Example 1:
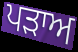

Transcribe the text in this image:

ਪਡ਼ਾਅ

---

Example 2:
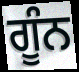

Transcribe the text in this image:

ਗੂੰਨ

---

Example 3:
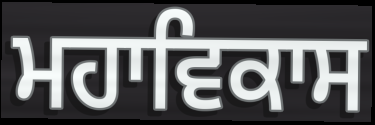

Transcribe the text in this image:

ਮਹਾਵਿਕਾਸ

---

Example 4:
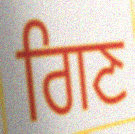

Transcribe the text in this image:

ਗਿਣ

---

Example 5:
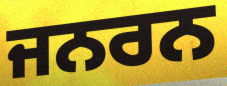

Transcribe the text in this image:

ਜਨਰਨ